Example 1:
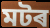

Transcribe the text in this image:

মটৰ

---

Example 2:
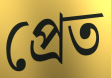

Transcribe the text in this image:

প্ৰেত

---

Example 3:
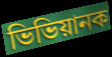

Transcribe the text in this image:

ভিভিয়ানক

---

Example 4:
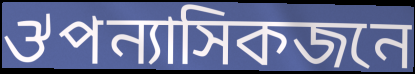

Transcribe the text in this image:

ঔপন্যাসিকজনে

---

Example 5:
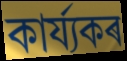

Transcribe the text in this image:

কাৰ্য্যকৰ